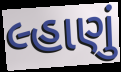
લ્હાણું